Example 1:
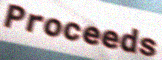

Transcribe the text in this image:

Proceeds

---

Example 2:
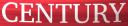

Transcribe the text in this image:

CENTURY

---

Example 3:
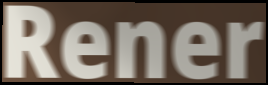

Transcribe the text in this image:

Rener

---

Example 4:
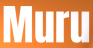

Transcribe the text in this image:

Muru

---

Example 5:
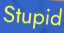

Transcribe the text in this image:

Stupid